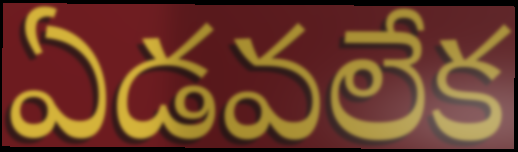
ఏడవలేక